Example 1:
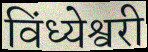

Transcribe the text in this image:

विंध्येश्वरी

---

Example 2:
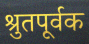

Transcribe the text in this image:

श्रुतपूर्वक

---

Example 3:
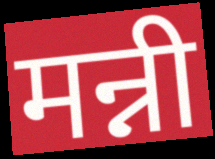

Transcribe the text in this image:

मन्नी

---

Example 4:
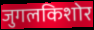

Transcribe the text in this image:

जुगलकिशोर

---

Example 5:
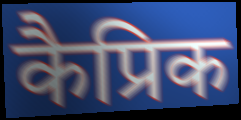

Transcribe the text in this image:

कैप्रिक